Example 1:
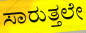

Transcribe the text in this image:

ಸಾರುತ್ತಲೇ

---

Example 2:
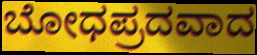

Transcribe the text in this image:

ಬೋಧಪ್ರದವಾದ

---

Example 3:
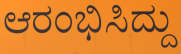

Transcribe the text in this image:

ಆರಂಭಿಸಿದ್ದು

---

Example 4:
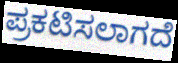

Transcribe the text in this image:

ಪ್ರಕಟಿಸಲಾಗದೆ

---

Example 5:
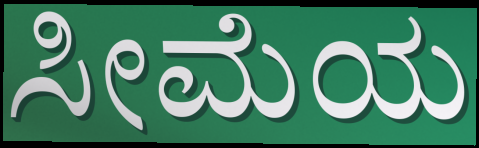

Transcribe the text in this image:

ಸೀಮೆಯ